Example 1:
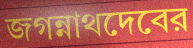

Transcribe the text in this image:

জগন্নাথদেবের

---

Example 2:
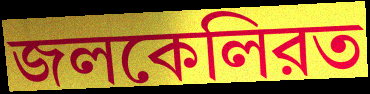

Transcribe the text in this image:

জলকেলিরত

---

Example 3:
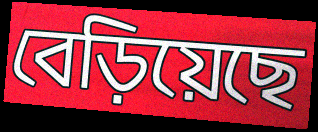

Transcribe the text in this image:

বেড়িয়েছে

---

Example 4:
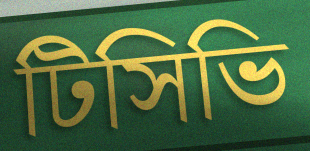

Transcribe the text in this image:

টিসিভি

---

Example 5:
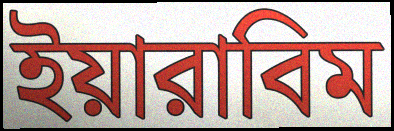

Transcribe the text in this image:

ইয়ারাবিম